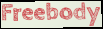
Freebody